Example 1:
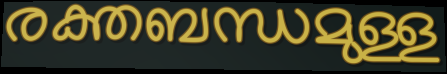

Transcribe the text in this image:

രക്തബന്ധമുള്ള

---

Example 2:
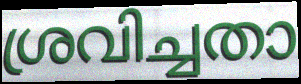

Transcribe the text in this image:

ശ്രവിച്ചതാ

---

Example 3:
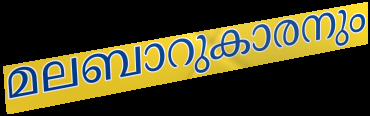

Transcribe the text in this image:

മലബാറുകാരനും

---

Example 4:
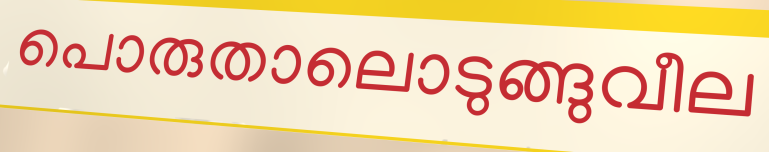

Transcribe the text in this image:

പൊരുതാലൊടുങ്ങുവീല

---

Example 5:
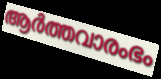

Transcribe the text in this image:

ആർത്തവാരംഭം